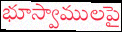
భూస్వాములపై